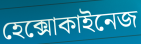
হেক্সোকাইনেজ